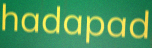
hadapad